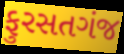
ફુરસતગંજ